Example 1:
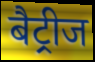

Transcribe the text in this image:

बैट्रीज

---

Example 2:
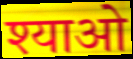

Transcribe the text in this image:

श्याओ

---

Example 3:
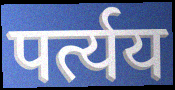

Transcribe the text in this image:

पर्त्यय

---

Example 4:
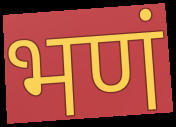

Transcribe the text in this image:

भणं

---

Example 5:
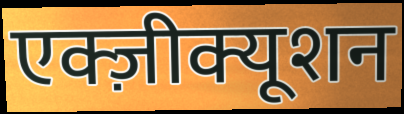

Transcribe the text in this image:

एक्ज़ीक्यूशन